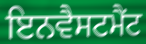
ਇਨਵੈਸਟਮੈਂਟ